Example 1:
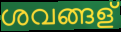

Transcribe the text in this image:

ശവങ്ങള്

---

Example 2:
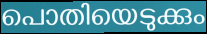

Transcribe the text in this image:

പൊതിയെടുക്കും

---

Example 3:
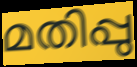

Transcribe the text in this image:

മതിപ്പു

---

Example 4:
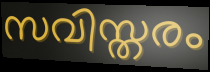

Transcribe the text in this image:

സവിസ്തരം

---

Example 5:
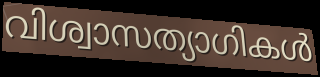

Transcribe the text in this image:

വിശ്വാസത്യാഗികൾ